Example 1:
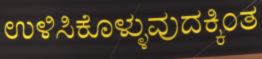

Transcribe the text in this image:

ಉಳಿಸಿಕೊಳ್ಳುವುದಕ್ಕಿಂತ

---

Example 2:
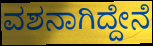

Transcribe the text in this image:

ವಶನಾಗಿದ್ದೇನೆ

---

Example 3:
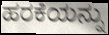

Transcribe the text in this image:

ಹರಕೆಯನ್ನು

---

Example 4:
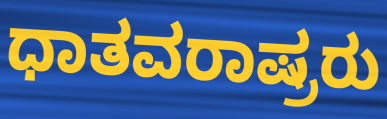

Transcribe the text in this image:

ಧಾತವರಾಷ್ರರು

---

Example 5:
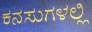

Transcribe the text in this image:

ಕನಸುಗಳಲ್ಲಿ